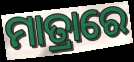
ମାତ୍ରାରେ